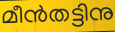
മീൻതട്ടിനു